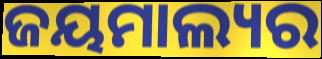
ଜୟମାଲ୍ୟର